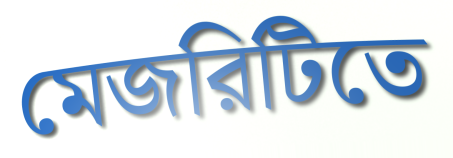
মেজরিটিতে